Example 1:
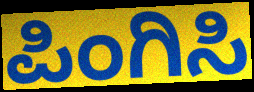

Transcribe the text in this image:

ಪಿಂಗಿಸಿ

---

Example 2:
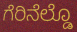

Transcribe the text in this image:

ಗೆರಿನೆಲ್ಡೊ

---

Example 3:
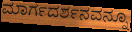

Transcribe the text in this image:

ಮಾರ್ಗದರ್ಶನವನ್ನೂ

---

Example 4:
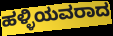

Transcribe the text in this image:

ಹಳ್ಳಿಯವರಾದ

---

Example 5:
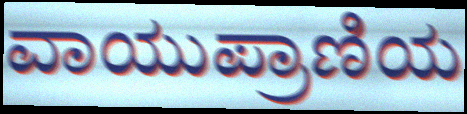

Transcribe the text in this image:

ವಾಯುಪ್ರಾಣಿಯ